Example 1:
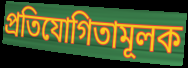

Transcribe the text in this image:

প্রতিযোগিতামূলক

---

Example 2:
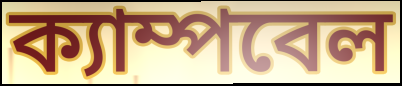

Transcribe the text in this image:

ক্যাম্পবেল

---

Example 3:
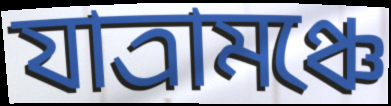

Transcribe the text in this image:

যাত্রামঞ্চে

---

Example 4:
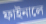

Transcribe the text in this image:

ফাইনালে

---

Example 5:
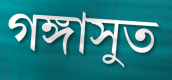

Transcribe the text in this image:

গঙ্গাসুত